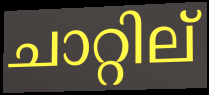
ചാറ്റില്